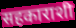
सहकाराशी